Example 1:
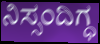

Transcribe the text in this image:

ನಿಸ್ಸಂದಿಗ್ಧ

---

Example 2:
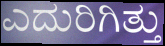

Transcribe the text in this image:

ಎದುರಿಗಿತ್ತು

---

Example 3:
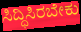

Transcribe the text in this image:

ಸಿದ್ಧಿಸಿರಬೇಕು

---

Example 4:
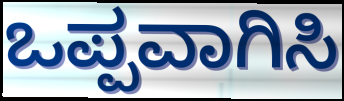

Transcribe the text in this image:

ಒಪ್ಪವಾಗಿಸಿ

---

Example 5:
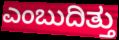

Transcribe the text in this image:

ಎಂಬುದಿತ್ತು